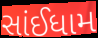
સાંઈધામ